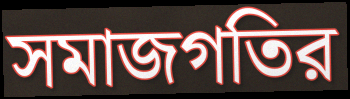
সমাজগতির